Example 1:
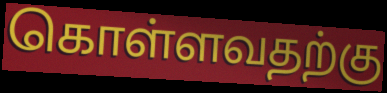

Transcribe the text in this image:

கொள்ளவதற்கு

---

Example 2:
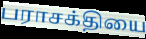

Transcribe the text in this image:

பராசக்தியை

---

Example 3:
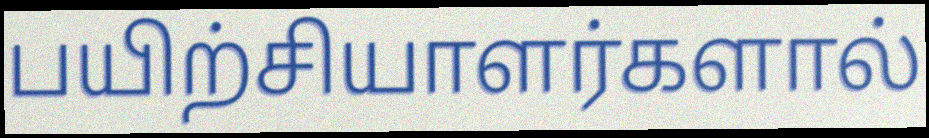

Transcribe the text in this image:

பயிற்சியாளர்களால்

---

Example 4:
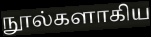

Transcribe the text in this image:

நூல்களாகிய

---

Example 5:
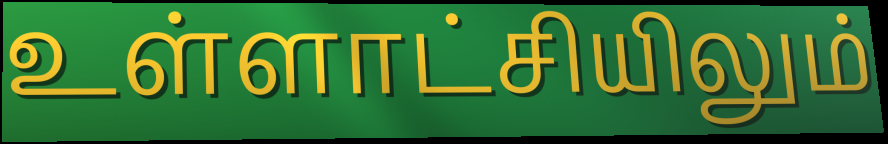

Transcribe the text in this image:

உள்ளாட்சியிலும்